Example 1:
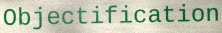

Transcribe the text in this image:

Objectification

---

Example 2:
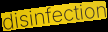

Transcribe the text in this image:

disinfection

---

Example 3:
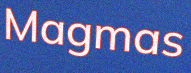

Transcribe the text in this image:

Magmas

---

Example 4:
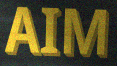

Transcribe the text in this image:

AIM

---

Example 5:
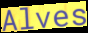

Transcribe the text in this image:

Alves